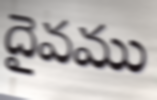
దైవము